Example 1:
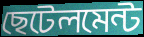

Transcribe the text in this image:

ছেটেলমেন্ট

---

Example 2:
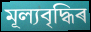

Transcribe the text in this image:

মূল্যবৃদ্ধিৰ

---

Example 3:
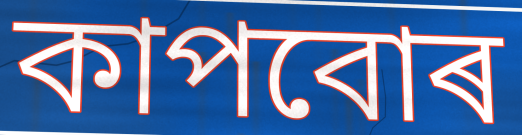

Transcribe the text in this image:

কাপবোৰ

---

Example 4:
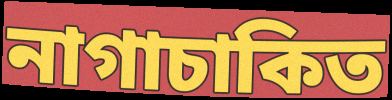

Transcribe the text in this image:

নাগাচাকিত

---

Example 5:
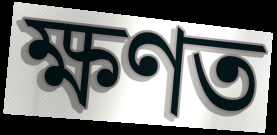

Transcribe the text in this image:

ক্ষণত